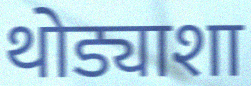
थोड्याशा